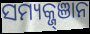
ସମ୍ୟକ୍ଜ୍ଞାନ